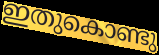
ഇതുകൊണ്ടു